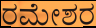
ರಮೇಶರ